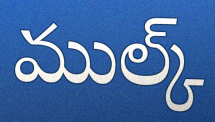
ముల్క్